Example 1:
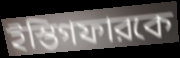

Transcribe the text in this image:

ইস্তিগফারকে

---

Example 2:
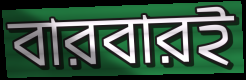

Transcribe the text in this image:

বারবারই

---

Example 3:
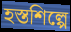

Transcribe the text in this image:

হস্তশিল্পে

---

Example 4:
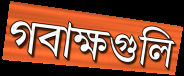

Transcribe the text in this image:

গবাক্ষগুলি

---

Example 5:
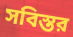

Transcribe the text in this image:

সবিস্তর